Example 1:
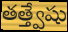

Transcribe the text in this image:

తత్త్వేషు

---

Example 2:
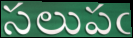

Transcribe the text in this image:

సలుపఁ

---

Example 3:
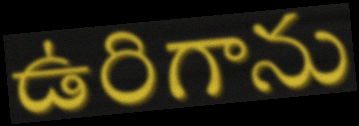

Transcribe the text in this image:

ఉరిగాను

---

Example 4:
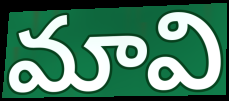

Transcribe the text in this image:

మావి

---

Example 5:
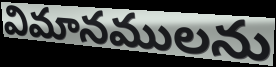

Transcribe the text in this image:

విమానములను